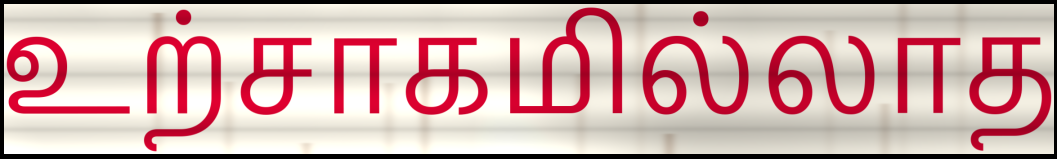
உற்சாகமில்லாத